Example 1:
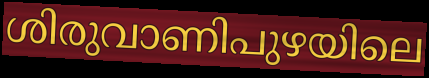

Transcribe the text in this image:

ശിരുവാണിപുഴയിലെ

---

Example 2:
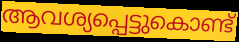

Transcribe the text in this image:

ആവശ്യപ്പെട്ടുകൊണ്ട്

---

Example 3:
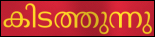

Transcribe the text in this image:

കിടത്തുന്നു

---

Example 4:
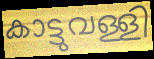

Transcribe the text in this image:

കാട്ടുവള്ളി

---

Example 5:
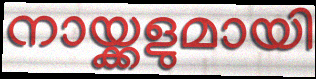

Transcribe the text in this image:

നായ്ക്കളുമായി